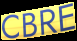
CBRE